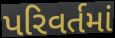
પરિવર્તમાં